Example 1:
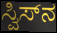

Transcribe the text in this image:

ಸ್ವಿಸ್‌ನ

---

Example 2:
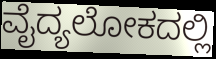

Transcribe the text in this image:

ವೈದ್ಯಲೋಕದಲ್ಲಿ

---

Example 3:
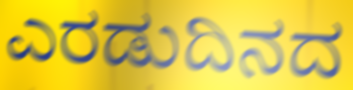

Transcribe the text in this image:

ಎರಡುದಿನದ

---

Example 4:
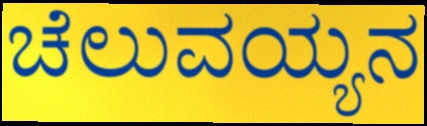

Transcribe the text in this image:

ಚೆಲುವಯ್ಯನ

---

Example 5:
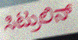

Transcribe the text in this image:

ಸಿಟ್ರುಲಿನ್